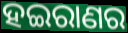
ହଇରାଣର